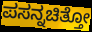
ಪಸನ್ನಚಿತ್ತೋ